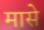
मासे